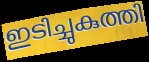
ഇടിച്ചുകുത്തി